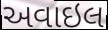
અવાઇલ